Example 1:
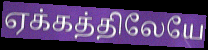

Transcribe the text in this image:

ஏக்கத்திலேயே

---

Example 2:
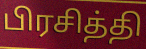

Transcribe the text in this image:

பிரசித்தி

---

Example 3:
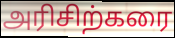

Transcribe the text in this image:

அரிசிற்கரை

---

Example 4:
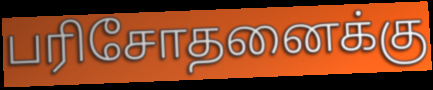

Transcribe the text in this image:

பரிசோதனைக்கு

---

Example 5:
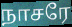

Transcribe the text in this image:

நாசரே